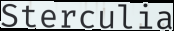
Sterculia